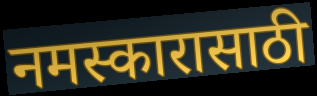
नमस्कारासाठी